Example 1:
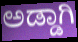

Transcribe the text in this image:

ಅಡ್ಡಾಗಿ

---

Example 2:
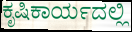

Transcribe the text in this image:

ಕೃಷಿಕಾರ್ಯದಲ್ಲಿ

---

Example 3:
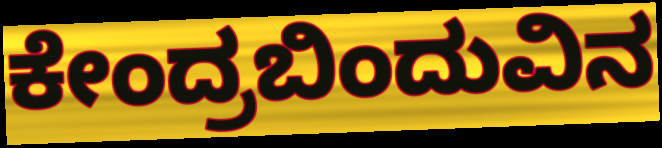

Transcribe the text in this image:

ಕೇಂದ್ರಬಿಂದುವಿನ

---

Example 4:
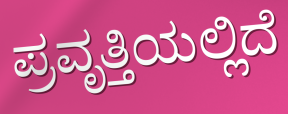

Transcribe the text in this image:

ಪ್ರವೃತ್ತಿಯಲ್ಲಿದೆ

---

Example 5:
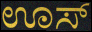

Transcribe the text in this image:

ಊಸ್